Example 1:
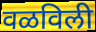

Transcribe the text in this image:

वळविली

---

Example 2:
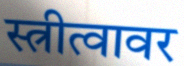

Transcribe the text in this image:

स्त्रीत्वावर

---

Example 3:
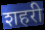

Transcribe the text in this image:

शहरी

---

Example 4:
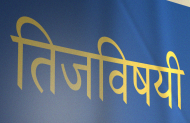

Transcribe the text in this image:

तिजविषयी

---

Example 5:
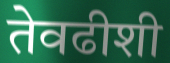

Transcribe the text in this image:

तेवढीशी